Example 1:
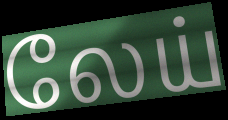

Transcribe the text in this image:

லேய்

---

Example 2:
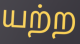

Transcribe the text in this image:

யற்ற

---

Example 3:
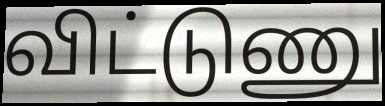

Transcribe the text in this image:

விட்டுணு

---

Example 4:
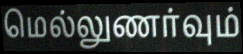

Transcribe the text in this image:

மெல்லுணர்வும்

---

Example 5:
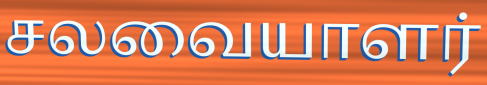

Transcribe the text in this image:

சலவையாளர்